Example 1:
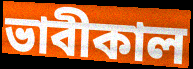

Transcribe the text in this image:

ভাবীকাল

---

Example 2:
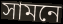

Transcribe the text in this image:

সামনে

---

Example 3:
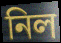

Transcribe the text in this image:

নিল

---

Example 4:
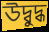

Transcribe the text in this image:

উদ্বুদ্ধ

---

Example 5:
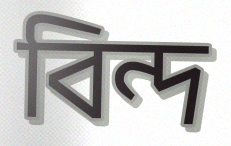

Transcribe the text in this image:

বিন্দ